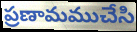
ప్రణామముచేసి